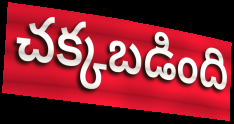
చక్కబడింది